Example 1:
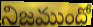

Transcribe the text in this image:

నిజముందో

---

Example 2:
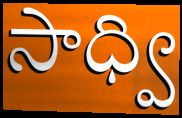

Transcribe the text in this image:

సాధ్వి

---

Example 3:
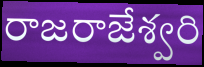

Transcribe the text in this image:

రాజరాజేశ్వరి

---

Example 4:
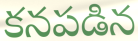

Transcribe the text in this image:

కనపడిన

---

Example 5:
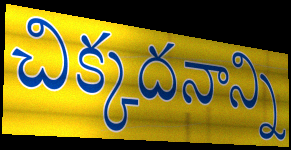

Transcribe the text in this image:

చిక్కదనాన్ని